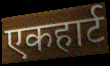
एकहार्ट